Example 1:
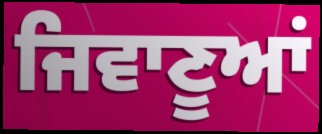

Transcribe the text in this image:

ਜਿਵਾਣੂਆਂ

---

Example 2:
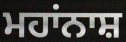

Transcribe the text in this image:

ਮਹਾਂਨਾਸ਼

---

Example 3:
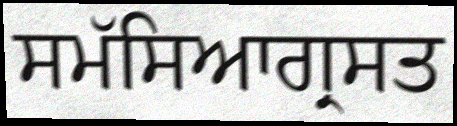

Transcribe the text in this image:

ਸਮੱਸਿਆਗ੍ਰਸਤ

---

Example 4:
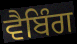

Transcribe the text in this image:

ਵੈਬਿੰਗ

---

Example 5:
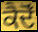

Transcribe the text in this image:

ਕੈਦੋਁ